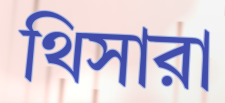
থিসারা